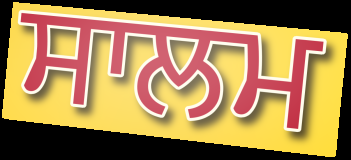
ਸਾਲਮ